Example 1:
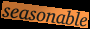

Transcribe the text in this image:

seasonable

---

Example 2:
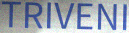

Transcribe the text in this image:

TRIVENI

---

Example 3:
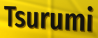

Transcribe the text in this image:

Tsurumi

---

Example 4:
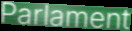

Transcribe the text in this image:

Parlament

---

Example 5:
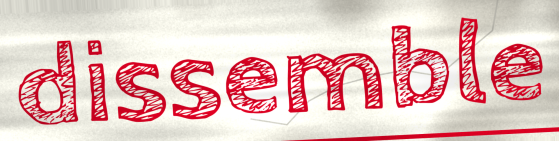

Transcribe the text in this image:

dissemble